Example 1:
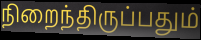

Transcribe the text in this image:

நிறைந்திருப்பதும்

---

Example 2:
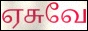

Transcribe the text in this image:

ஏசுவே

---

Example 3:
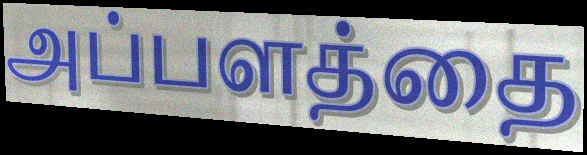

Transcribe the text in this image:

அப்பளத்தை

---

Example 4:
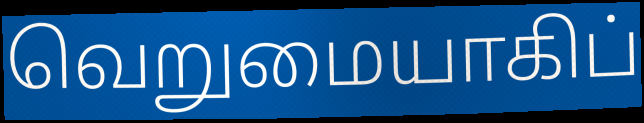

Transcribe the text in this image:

வெறுமையாகிப்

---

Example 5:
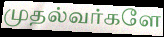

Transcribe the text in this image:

முதல்வர்களே